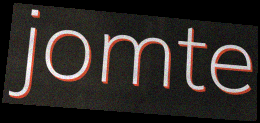
jomte